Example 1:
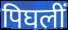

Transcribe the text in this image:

पिघलीं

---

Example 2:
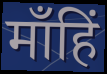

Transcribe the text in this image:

माँहिं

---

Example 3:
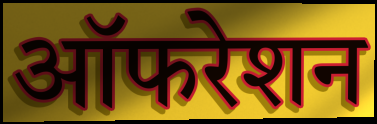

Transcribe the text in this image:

ऑफरेशन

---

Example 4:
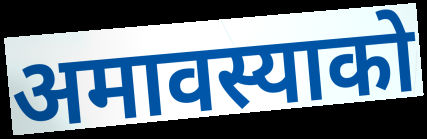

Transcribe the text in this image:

अमावस्याको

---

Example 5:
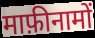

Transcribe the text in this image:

माफ़ीनामों